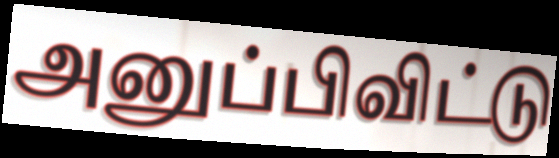
அனுப்பிவிட்டு